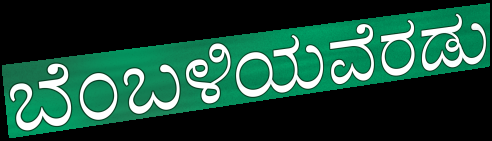
ಬೆಂಬಳಿಯವೆರಡು